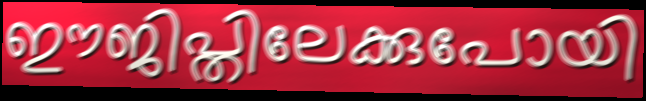
ഈജിപ്തിലേക്കുപോയി